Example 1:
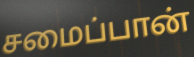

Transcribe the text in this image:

சமைப்பான்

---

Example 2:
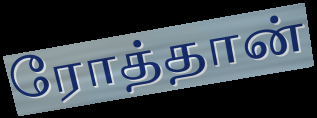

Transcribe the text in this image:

ரோத்தான்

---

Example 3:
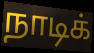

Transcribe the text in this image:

நாடிக்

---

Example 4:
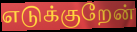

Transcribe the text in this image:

எடுக்குறேன்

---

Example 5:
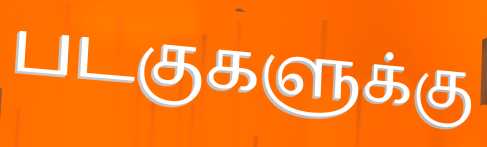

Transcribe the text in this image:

படகுகளுக்கு